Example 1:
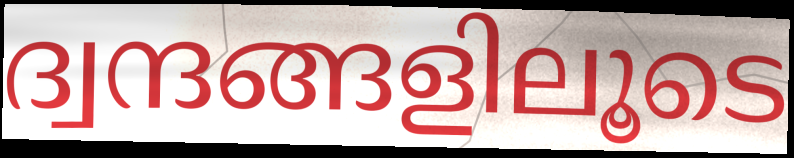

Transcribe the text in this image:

ദ്വന്ദങ്ങളിലൂടെ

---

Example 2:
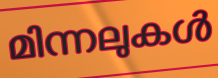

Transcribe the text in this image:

മിന്നലുകൾ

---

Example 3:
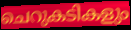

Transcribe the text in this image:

ചെറുകടികളും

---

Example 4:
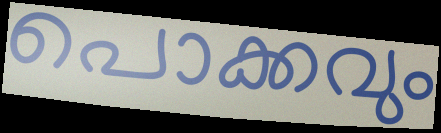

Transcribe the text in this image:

പൊക്കവും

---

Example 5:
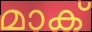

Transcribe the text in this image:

മാക്